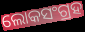
ଲୋକସଂଗ୍ରହ